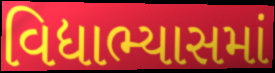
વિદ્યાભ્યાસમાં